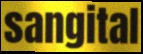
sangital